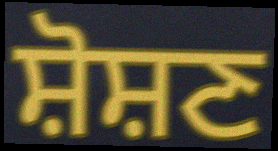
ਸ਼ੋਸ਼ਣ